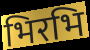
भिरभि